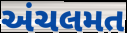
અંચલમત